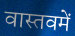
वास्तवमें